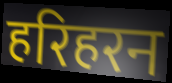
हरिहरन